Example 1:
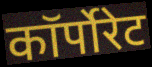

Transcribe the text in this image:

कॉर्पोरेट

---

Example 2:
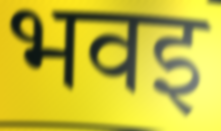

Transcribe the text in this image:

भवइ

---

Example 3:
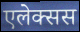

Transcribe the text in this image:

एलेक्सस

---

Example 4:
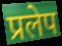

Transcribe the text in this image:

प्रलेप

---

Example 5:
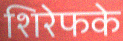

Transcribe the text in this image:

शिरेफके